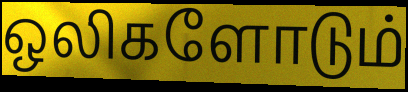
ஒலிகளோடும்